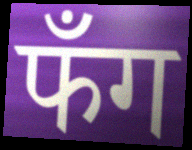
फँग